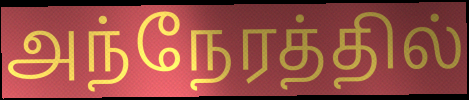
அந்நேரத்தில்